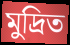
মুদ্ৰিত